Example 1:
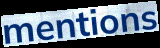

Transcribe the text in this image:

mentions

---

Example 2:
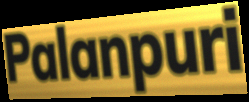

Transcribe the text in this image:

Palanpuri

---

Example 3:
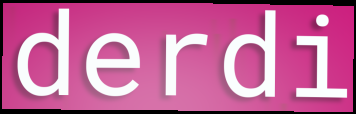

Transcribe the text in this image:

derdi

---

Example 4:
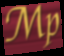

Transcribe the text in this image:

Mp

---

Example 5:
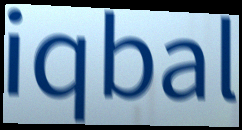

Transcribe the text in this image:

iqbal